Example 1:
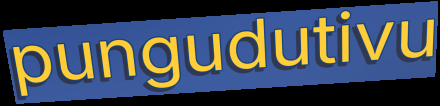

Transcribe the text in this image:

pungudutivu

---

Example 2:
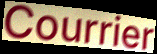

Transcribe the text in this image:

Courrier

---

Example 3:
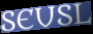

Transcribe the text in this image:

SEUSL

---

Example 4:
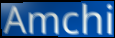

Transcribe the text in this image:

Amchi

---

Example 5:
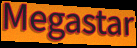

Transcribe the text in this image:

Megastar